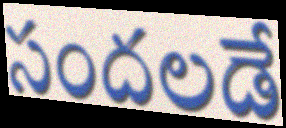
సందలడే